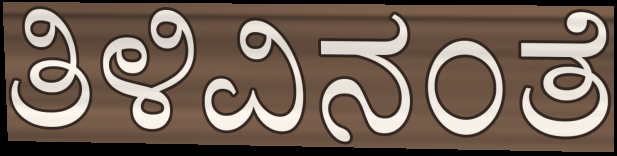
ತಿಳಿವಿನಂತೆ